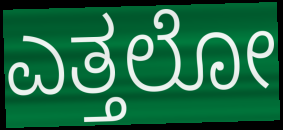
ಎತ್ತಲೋ